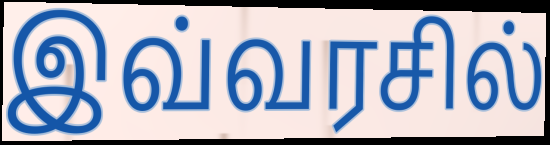
இவ்வரசில்